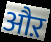
औऱ